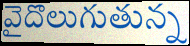
వైదొలుగుతున్న